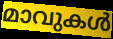
മാവുകൾ